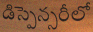
డిస్పెన్సరీలో